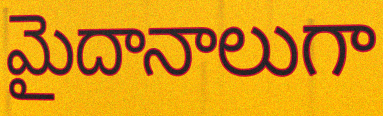
మైదానాలుగా